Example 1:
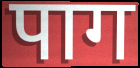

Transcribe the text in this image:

पाग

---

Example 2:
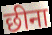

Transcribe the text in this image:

छीना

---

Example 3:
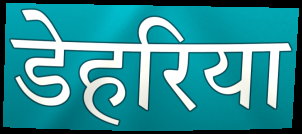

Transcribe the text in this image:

डेहरिया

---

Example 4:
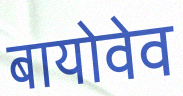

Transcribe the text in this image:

बायोवेव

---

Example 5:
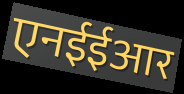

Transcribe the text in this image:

एनईईआर